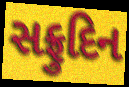
સફ્રુદિન